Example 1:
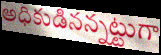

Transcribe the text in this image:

అధికుడినన్నట్టుగా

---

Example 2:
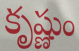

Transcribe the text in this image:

కృష్ణుం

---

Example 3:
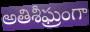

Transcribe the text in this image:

అతిశీఘ్రంగా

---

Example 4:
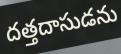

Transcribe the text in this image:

దత్తదాసుడను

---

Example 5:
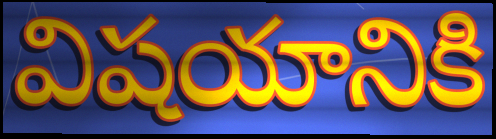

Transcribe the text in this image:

విషయానికి